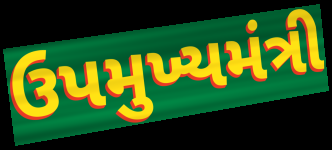
ઉપમુખ્યમંત્રી